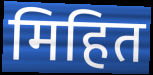
मिहित